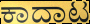
ಕಾದಾಟ